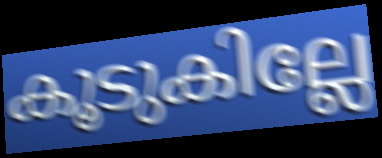
കൂടുകില്ലേ